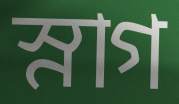
স্নাগ